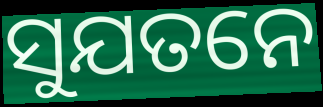
ସୁଯତନେ